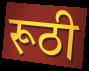
रूठी